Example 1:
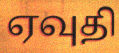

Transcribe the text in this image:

ஏவுதி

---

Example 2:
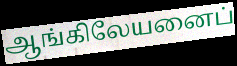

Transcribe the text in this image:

ஆங்கிலேயனைப்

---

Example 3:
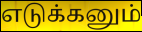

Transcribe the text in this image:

எடுக்கனும்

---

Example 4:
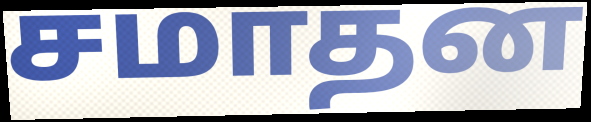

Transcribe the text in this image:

சமாதன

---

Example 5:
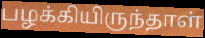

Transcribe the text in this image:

பழக்கியிருந்தாள்